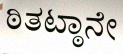
ಠಿತಟ್ಠಾನೇ